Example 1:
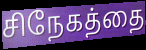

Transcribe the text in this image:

சிநேகத்தை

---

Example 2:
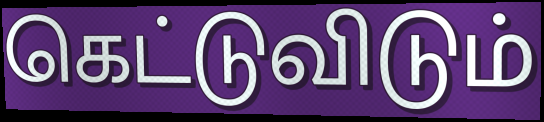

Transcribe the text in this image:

கெட்டுவிடும்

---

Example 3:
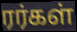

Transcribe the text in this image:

ரர்கள்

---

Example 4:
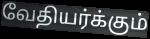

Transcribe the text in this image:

வேதியர்க்கும்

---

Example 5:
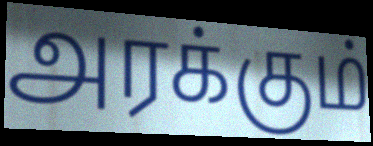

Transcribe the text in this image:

அரக்கும்